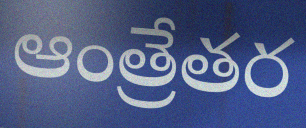
ఆంత్రేతర